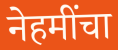
नेहमींचा